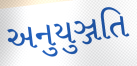
અનુયુઞ્જતિ